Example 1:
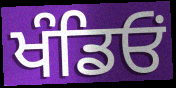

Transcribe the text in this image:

ਖੰਡਿਓਂ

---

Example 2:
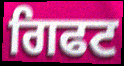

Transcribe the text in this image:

ਗਿਫਟ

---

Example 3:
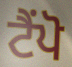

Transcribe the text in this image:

ਟੈਂਪੋ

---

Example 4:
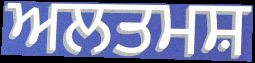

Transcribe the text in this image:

ਅਲਤਮਸ਼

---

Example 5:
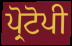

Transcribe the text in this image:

ਪ੍ਰੋਟੋਪੀ